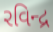
રવિન્દ્ર